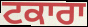
ਟਕਾਰਾ